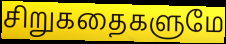
சிறுகதைகளுமே